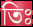
তিঃ